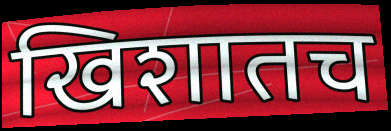
खिशातच